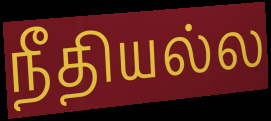
நீதியல்ல